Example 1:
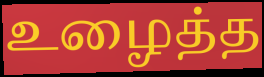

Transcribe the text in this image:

உழைத்த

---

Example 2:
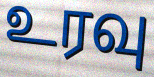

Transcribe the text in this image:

உரவு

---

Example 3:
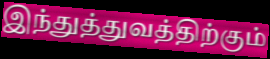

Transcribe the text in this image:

இந்துத்துவத்திற்கும்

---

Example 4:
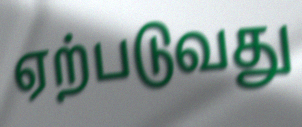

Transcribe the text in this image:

ஏற்படுவது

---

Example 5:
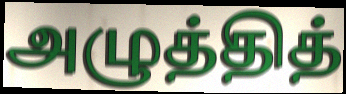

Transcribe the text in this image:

அழுத்தித்